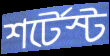
শর্টেস্ট